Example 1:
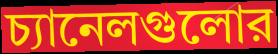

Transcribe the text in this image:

চ্যানেলগুলোর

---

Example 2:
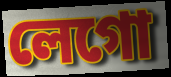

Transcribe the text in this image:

লেগো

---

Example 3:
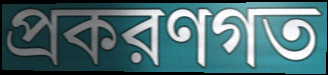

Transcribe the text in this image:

প্রকরণগত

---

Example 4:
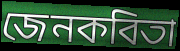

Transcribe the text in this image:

জেনকবিতা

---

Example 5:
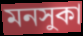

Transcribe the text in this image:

মনসুকা